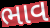
ભાવ